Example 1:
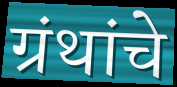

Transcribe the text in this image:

ग्रंथांचे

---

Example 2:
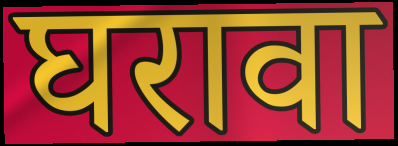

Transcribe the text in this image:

घरावा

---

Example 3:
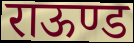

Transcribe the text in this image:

राऊण्ड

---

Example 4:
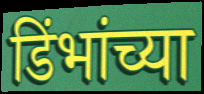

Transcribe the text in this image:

डिंभांच्या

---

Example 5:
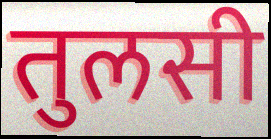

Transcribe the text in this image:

तुलसी